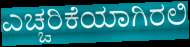
ಎಚ್ಚರಿಕೆಯಾಗಿರಲಿ